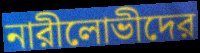
নারীলোভীদের